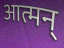
आत्मन्